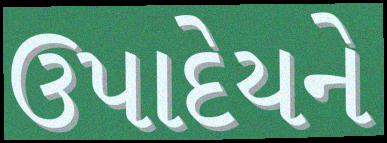
ઉપાદેયને